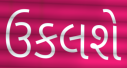
ઉકલશે